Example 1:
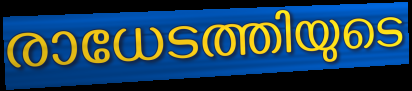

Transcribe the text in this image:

രാധേടത്തിയുടെ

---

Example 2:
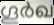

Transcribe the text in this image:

ഗൂർഖ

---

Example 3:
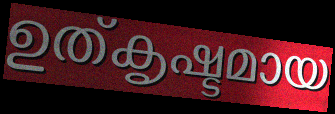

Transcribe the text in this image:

ഉത്കൃഷ്ടമായ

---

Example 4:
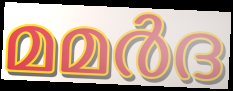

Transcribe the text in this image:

മമർദ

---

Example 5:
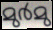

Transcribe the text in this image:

മുർമു